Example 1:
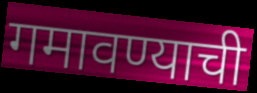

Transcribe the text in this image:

गमावण्याची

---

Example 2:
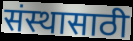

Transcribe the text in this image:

संस्थासाठी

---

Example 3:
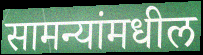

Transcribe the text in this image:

सामन्यांमधील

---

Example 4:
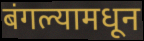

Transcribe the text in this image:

बंगल्यामधून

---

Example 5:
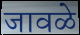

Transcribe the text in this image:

जावळे